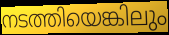
നടത്തിയെങ്കിലും